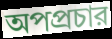
অপপ্রচার